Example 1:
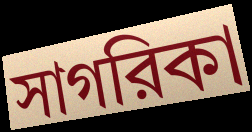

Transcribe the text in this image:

সাগরিকা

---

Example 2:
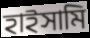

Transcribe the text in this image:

হাইসামি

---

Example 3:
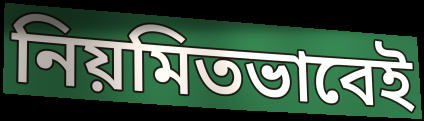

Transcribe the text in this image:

নিয়মিতভাবেই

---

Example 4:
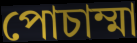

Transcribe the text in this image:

পোচাম্মা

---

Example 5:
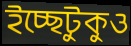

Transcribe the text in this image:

ইচ্ছেটুকুও